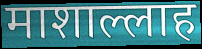
माशाल्लाह